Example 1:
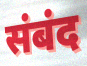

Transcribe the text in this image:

संबंद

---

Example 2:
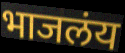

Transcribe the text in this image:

भाजलंय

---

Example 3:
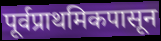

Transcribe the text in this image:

पूर्वप्राथमिकपासून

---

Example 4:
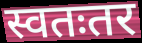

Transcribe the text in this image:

स्वतःतर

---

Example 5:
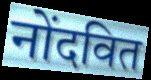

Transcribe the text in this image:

नोंदवित